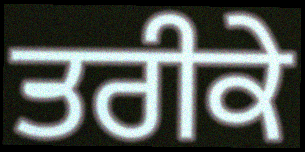
ਤਰੀਕੇ